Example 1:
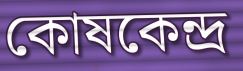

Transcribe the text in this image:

কোষকেন্দ্ৰ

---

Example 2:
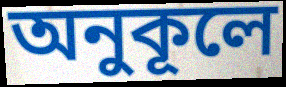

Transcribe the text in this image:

অনুকূলে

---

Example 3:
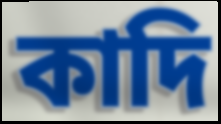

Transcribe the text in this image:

কাদি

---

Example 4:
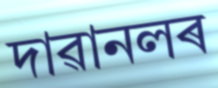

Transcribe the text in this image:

দাৱানলৰ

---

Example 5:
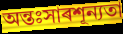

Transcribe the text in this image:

অন্তঃসাৰশূন্যতা